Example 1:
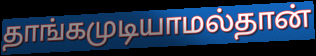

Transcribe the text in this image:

தாங்கமுடியாமல்தான்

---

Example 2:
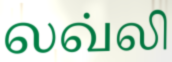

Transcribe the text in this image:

லவ்லி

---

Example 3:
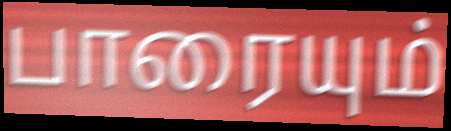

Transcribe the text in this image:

பாரையும்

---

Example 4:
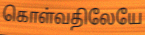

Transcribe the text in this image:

கொள்வதிலேயே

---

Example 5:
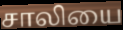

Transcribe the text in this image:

சாலியை